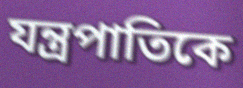
যন্ত্রপাতিকে